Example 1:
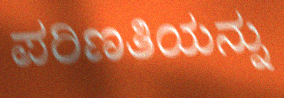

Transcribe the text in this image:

ಪರಿಣತಿಯನ್ನು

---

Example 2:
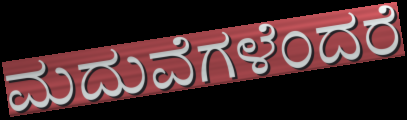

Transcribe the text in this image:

ಮದುವೆಗಳೆಂದರೆ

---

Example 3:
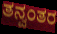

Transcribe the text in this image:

ತನ್ವಂತರ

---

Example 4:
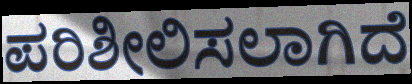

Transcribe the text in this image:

ಪರಿಶೀಲಿಸಲಾಗಿದೆ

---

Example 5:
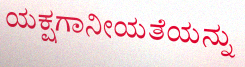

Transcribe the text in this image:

ಯಕ್ಷಗಾನೀಯತೆಯನ್ನು